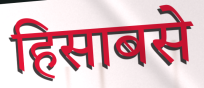
हिसाबसे